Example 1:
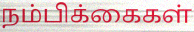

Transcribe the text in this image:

நம்பிக்கைகள்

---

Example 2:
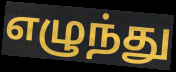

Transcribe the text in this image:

எழுந்து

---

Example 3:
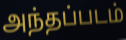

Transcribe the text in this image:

அந்தப்படம்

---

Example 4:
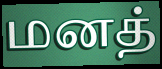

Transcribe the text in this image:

மனத்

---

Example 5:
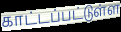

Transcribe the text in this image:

காட்டப்பட்டுள்ள